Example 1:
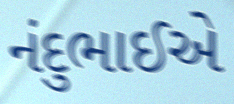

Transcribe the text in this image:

નંદુભાઈએ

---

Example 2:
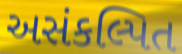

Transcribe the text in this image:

અસંકલ્પિત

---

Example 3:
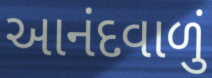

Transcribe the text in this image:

આનંદવાળું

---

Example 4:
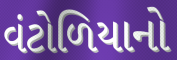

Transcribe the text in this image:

વંટોળિયાનો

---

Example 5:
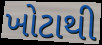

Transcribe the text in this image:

ખોટાથી